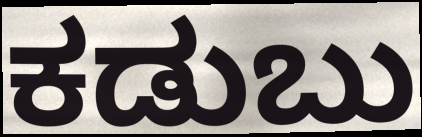
ಕಡುಬು